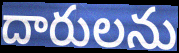
దారులను